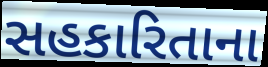
સહકારિતાના